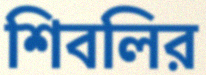
শিবলির